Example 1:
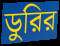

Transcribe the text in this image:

ডুরির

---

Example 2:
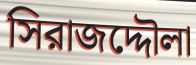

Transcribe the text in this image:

সিরাজদ্দৌলা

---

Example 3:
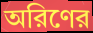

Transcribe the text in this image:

অরিণের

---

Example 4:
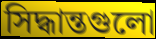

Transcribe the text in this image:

সিদ্ধান্তগুলো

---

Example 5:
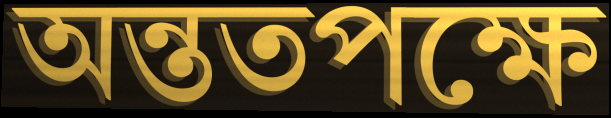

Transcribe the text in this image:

অন্ততপক্ষে